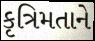
કૃત્રિમતાને